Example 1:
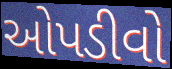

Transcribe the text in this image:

ઓપડીવો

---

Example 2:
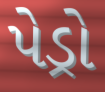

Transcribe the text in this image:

પેડ્રો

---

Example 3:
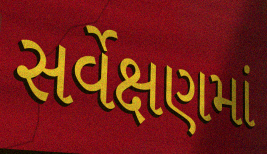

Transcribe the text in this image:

સર્વેક્ષણમાં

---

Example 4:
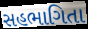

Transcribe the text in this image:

સહભાગિતા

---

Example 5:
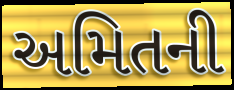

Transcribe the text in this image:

અમિતની